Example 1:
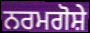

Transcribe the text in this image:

ਨਰਮਗੋਸ਼ੇ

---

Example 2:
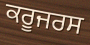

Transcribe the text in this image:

ਕਰੂਜਰਸ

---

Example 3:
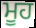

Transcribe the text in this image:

ਮੂਹ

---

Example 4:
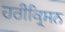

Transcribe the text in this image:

ਹਰੀਕ੍ਰਿਸਨ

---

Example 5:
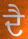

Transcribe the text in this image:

ਦੈ